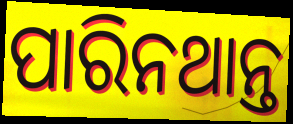
ପାରିନଥାନ୍ତ